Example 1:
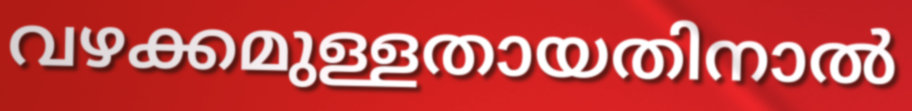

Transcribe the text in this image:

വഴക്കമുള്ളതായതിനാൽ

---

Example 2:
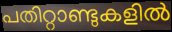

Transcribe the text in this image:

പതിറ്റാണ്ടുകളിൽ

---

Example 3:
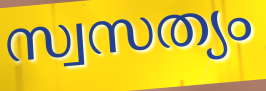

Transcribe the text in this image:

സ്വസത്യം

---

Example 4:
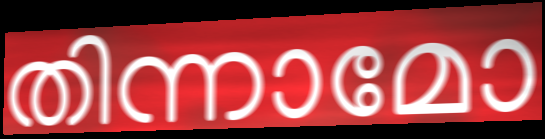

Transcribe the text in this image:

തിന്നാമോ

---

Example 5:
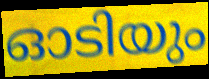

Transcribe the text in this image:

ഓടിയും